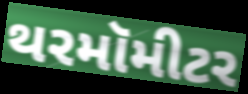
થરમૉમીટર